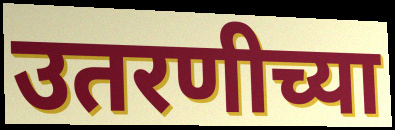
उतरणीच्या